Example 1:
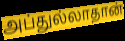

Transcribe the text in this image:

அப்துல்லாதான்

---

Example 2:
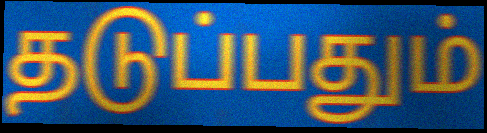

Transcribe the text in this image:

தடுப்பதும்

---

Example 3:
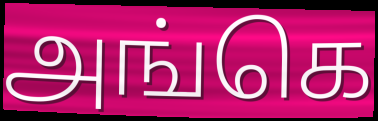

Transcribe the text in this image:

அங்கெ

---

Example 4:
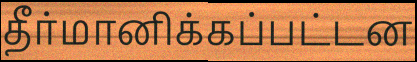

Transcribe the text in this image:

தீர்மானிக்கப்பட்டன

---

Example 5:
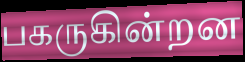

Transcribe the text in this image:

பகருகின்றன